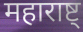
महाराष्ट्